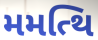
મમત્થિ